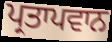
ਪ੍ਰਤਾਪਵਾਨ